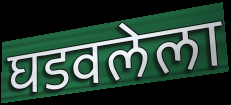
घडवलेला